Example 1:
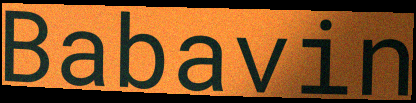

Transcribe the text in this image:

Babavin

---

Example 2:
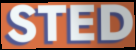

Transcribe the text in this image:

STED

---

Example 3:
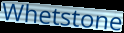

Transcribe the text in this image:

Whetstone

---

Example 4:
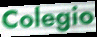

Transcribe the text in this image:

Colegio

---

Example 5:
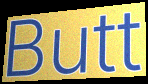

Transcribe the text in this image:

Butt